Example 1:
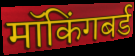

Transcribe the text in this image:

मॉकिंगबर्ड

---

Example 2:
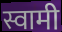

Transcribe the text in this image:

स्वामी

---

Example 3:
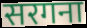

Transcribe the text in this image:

सरगना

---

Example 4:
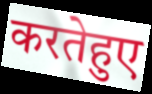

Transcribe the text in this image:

करतेहुए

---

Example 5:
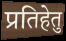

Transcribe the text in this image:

प्रतिहेतु